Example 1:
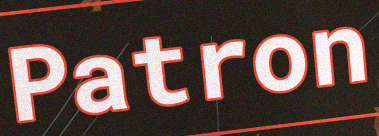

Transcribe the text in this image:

Patron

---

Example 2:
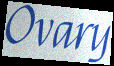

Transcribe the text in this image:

Ovary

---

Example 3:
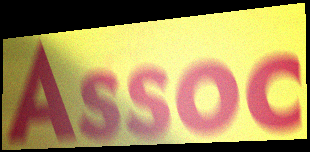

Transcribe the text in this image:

Assoc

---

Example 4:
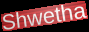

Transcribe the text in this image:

Shwetha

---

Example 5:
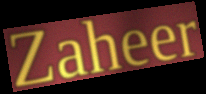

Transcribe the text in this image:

Zaheer